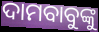
ଦାମବାବୁଙ୍କୁ